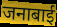
जनाबाई